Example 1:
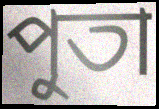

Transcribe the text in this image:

পুতা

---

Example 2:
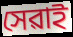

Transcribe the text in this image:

সেৱাই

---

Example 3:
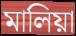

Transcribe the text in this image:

মালিয়া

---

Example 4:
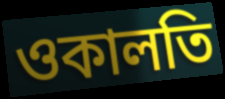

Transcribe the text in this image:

ওকালতি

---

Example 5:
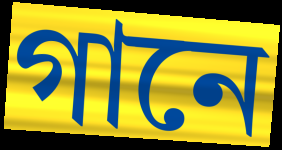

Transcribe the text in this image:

গানে